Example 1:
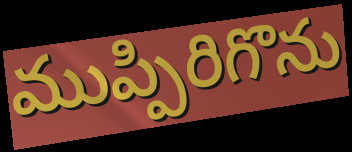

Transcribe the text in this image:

ముప్పిరిగొను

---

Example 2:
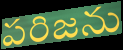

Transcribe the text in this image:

పరిజను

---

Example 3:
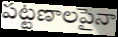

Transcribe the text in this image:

పట్టణాలపైనా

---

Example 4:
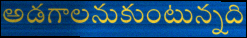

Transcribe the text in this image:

అడగాలనుకుంటున్నది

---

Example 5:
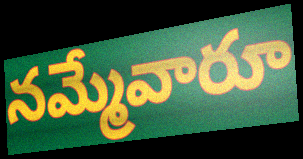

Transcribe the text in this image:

నమ్మేవారూ